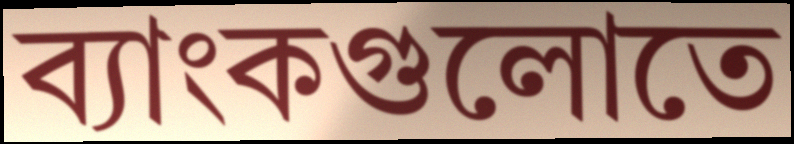
ব্যাংকগুলোতে